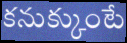
కనుక్కుంటే